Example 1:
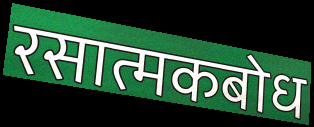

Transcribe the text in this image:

रसात्मकबोध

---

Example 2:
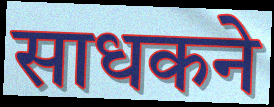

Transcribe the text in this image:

साधकने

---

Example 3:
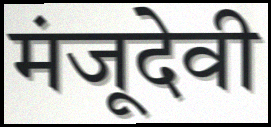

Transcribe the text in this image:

मंजूदेवी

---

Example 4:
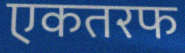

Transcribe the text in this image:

एकतरफ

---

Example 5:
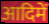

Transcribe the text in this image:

आदिमें